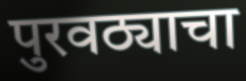
पुरवठ्याचा